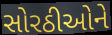
સોરઠીઓને